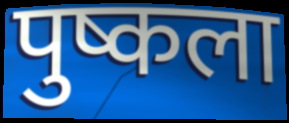
पुष्कला